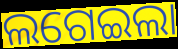
ଲଗେଇଲା